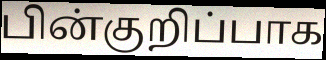
பின்குறிப்பாக